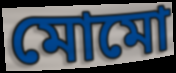
মোমো